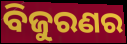
ବିଜୁରଣର